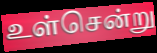
உள்சென்று